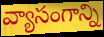
వ్యాసంగాన్ని